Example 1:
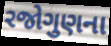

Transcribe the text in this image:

રજોગુણના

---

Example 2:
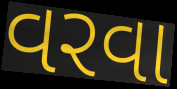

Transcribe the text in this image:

વરવા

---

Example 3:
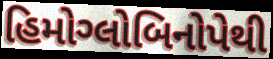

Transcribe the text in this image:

હિમોગ્લોબિનોપેથી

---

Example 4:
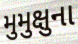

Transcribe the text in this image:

મુમુક્ષુના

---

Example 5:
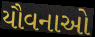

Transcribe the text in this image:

યૌવનાઓ